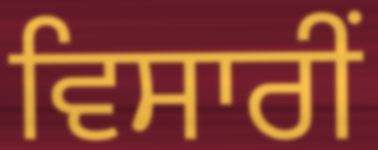
ਵਿਸਾਰੀਂ